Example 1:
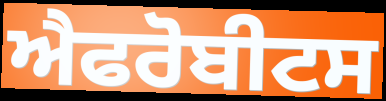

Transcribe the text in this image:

ਐਫਰੋਬੀਟਸ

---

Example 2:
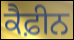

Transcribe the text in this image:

ਕੈਫ਼ੀਨ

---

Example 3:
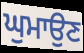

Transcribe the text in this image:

ਘੁਮਾਉਣ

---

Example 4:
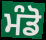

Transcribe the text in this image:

ਮੰਡੋ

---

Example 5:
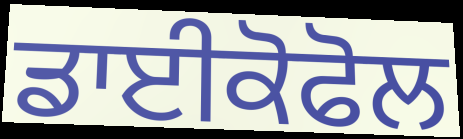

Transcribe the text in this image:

ਡਾਈਕੋਫੋਲ